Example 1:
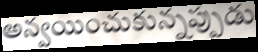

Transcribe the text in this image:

అన్వయించుకున్నప్పుడు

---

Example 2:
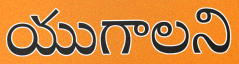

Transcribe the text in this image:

యుగాలని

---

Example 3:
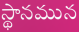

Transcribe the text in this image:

స్థానమున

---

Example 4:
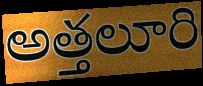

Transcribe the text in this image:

అత్తలూరి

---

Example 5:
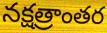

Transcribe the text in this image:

నక్షత్రాంతర